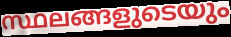
സ്ഥലങ്ങളുടെയും